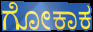
ಗೋಕಾಕ